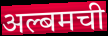
अल्बमची